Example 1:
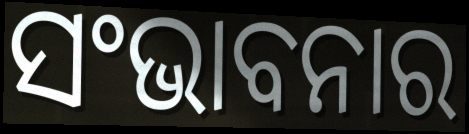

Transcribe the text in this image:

ସଂଭାବନାର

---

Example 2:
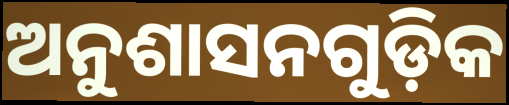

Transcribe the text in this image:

ଅନୁଶାସନଗୁଡ଼ିକ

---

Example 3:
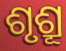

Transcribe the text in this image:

ଶୃଶ୍ରୂ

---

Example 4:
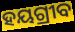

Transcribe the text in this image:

ହୟଗ୍ରୀବ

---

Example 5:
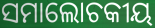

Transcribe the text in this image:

ସମାଲୋଚକୀୟ